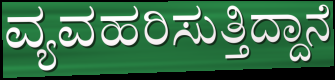
ವ್ಯವಹರಿಸುತ್ತಿದ್ದಾನೆ